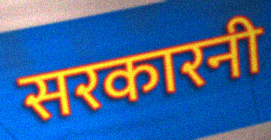
सरकारनी